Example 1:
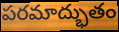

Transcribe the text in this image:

పరమాద్భుతం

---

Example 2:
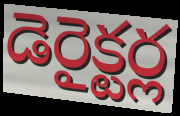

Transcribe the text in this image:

డెరైక్టర్ల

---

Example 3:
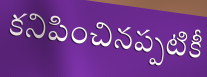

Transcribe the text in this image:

కనిపించినప్పటికీ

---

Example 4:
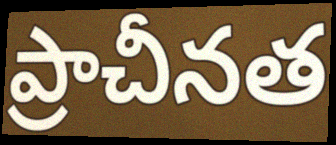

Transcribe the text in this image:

ప్రాచీనత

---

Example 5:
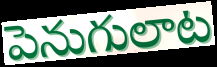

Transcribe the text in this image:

పెనుగులాట